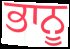
ਭਾਨੂ